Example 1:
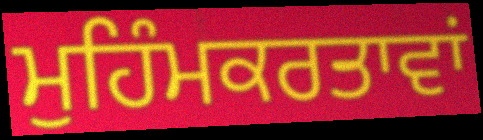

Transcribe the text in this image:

ਮੁਹਿੰਮਕਰਤਾਵਾਂ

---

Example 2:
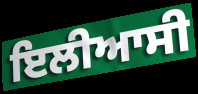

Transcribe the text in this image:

ਇਲੀਆਸੀ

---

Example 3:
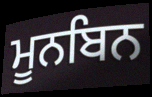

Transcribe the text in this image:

ਮੂਨਬਿਨ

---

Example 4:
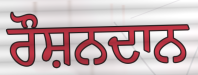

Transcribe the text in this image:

ਰੌਸ਼ਨਦਾਨ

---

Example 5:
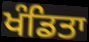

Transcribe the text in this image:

ਖੰਡਿਤਾ